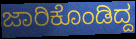
ಜಾರಿಕೊಂಡಿದ್ದ